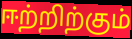
ஈற்றிற்கும்